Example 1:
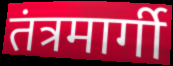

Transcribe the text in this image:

तंत्रमार्गी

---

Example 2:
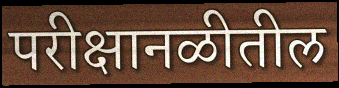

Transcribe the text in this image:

परीक्षानळीतील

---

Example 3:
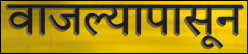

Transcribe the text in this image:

वाजल्यापासून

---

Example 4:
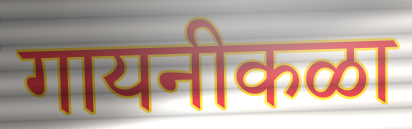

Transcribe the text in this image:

गायनीकळा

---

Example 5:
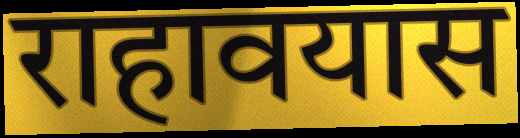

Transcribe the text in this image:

राहावयास